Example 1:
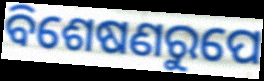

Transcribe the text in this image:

ବିଶେଷଣରୁପେ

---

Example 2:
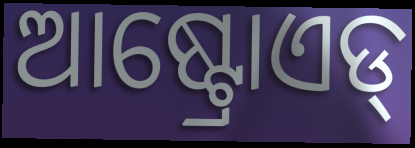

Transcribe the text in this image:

ଆଷ୍ଟ୍ରୋଏଡ୍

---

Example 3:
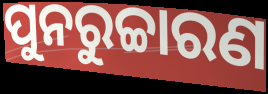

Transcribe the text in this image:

ପୁନରୁଚ୍ଚାରଣ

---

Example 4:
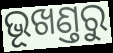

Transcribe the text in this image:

ଭୂଖଣ୍ତରୁ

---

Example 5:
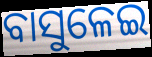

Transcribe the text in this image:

ବାସୁଳେଇ